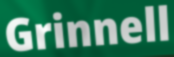
Grinnell